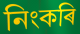
নিংকৰি